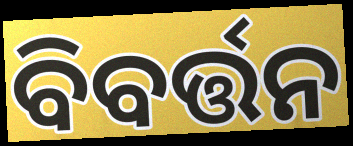
ବିବର୍ତ୍ତନ